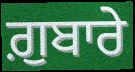
ਗ਼ੁਬਾਰੇ